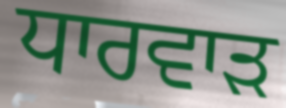
ਧਾਰਵਾੜ